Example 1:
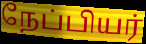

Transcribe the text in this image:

நேப்பியர்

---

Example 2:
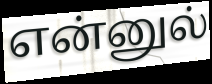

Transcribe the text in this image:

என்னுல்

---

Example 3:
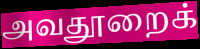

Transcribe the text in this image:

அவதூறைக்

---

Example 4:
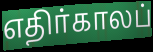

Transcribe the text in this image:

எதிர்காலப்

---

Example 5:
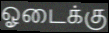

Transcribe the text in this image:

ஓடைக்கு